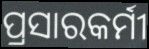
ପ୍ରସାରକର୍ମୀ